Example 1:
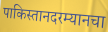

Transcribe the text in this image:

पाकिस्तानदरम्यानचा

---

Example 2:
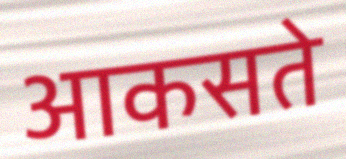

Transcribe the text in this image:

आकसते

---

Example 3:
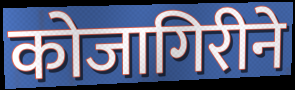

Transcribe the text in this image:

कोजागिरीने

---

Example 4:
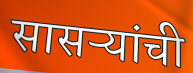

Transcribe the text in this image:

सासऱ्यांची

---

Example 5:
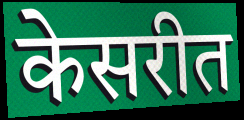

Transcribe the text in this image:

केसरीत